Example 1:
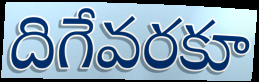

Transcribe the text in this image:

దిగేవరకూ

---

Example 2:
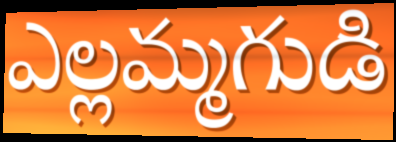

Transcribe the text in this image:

ఎల్లమ్మగుడి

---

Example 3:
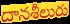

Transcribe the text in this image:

దానశీలురు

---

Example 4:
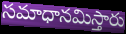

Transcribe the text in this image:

సమాధానమిస్తారు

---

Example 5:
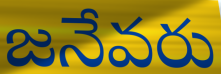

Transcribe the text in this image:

జనేవరు